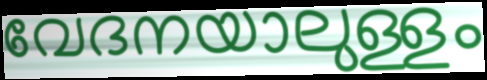
വേദനയാലുള്ളം